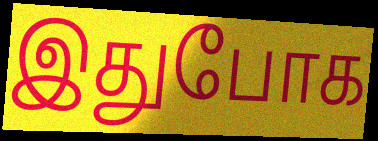
இதுபோக